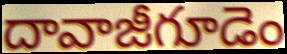
దావాజీగూడెం